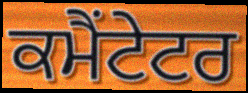
ਕਮੈਂਟੇਟਰ